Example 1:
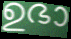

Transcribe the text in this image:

ഉഭാ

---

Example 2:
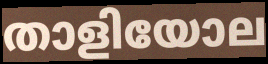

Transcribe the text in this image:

താളിയോല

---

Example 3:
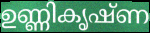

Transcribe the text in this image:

ഉണ്ണികൃഷ്ണ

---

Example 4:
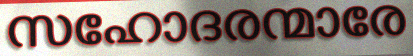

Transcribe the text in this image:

സഹോദരന്മാരേ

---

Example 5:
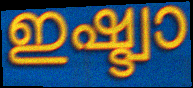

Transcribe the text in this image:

ഇഷ്ട്വാ